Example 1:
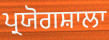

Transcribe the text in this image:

ਪ੍ਰਯੋਗਸ਼ਾਲਾ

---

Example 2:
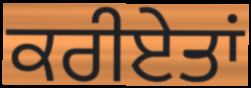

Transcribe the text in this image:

ਕਰੀਏਤਾਂ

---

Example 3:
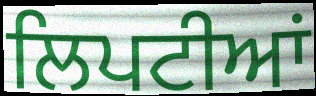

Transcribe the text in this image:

ਲਿਪਟੀਆਂ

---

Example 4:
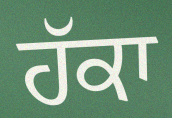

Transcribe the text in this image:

ਹੱਕਾ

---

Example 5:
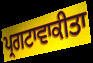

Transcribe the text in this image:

ਪ੍ਰਗਟਾਵਾਕੀਤਾ